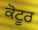
ਕੋਟੂਰ